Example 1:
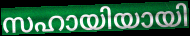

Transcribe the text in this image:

സഹായിയായി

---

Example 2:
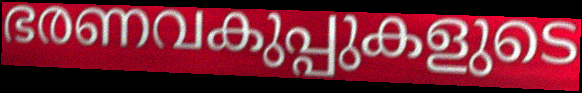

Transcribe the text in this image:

ഭരണവകുപ്പുകളുടെ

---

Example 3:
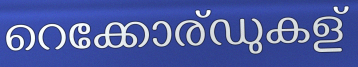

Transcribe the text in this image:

റെക്കോര്ഡുകള്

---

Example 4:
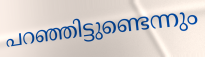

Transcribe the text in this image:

പറഞ്ഞിട്ടുണ്ടെന്നും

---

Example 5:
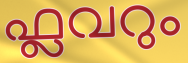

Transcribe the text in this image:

ഫ്ലവറും